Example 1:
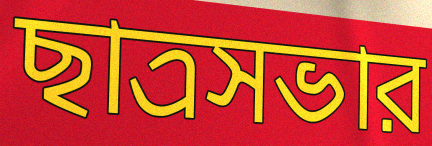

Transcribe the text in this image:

ছাত্রসভার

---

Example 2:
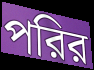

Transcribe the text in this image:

পরির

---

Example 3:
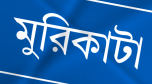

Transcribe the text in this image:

মুরিকাটা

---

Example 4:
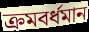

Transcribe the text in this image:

ক্রমবর্ধমান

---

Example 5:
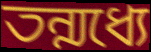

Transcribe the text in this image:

তন্মধ্যে